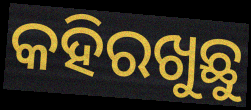
କହିରଖୁଛୁ